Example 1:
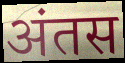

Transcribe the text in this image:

अंतस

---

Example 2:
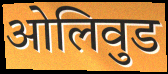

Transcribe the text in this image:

ओलिवुड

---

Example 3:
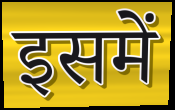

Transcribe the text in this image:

इसमें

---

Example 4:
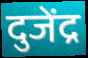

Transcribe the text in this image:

दुजेंद्र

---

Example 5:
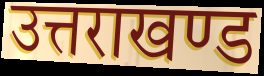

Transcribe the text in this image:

उत्तराखण्ड